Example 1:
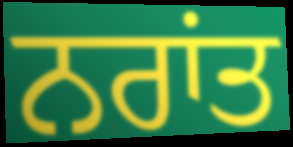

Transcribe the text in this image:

ਨਰਾਂਤ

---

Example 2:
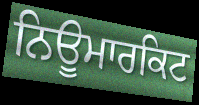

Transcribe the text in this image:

ਨਿਊਮਾਰਕਿਟ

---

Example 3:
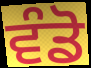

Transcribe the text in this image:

ਵੰਡੋ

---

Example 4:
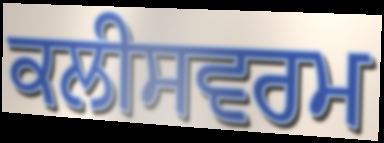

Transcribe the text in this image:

ਕਲੀਸਵਰਮ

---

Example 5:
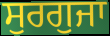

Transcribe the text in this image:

ਸੁਰਗੁਜਾ